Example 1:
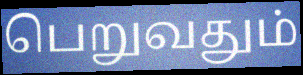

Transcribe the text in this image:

பெறுவதும்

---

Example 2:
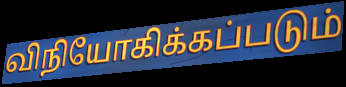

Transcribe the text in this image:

விநியோகிக்கப்படும்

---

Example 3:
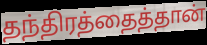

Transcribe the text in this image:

தந்திரத்தைத்தான்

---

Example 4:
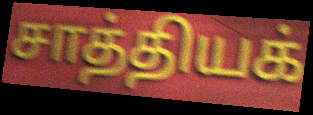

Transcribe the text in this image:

சாத்தியக்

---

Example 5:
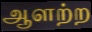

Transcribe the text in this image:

ஆளற்ற